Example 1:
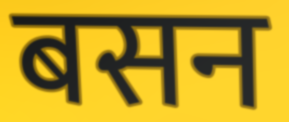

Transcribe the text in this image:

बसन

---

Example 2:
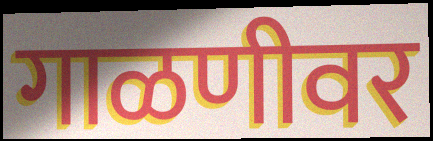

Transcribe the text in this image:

गाळणीवर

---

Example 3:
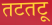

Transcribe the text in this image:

तटतटू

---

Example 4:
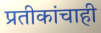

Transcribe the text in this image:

प्रतीकांचाही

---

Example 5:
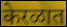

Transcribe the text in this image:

केरळात